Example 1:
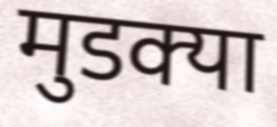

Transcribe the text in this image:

मुडक्या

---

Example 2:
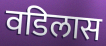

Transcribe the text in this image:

वडिलास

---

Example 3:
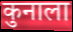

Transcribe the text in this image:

कुनाला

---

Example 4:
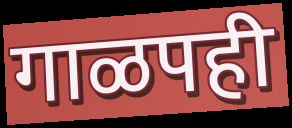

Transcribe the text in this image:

गाळपही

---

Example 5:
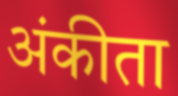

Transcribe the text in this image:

अंकीता